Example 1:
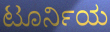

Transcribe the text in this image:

ಟೂರ್ನಿಯ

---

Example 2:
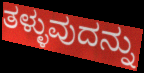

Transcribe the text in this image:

ತಳ್ಳುವುದನ್ನು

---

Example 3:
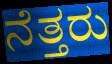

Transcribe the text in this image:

ನೆತ್ತರು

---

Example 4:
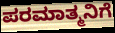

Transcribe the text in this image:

ಪರಮಾತ್ಮನಿಗೆ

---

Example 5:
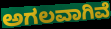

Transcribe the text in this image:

ಅಗಲವಾಗಿವೆ